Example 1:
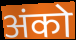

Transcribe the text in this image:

अंको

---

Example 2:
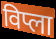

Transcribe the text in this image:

विप्ला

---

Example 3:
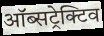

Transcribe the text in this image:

ऑब्सट्रेक्टिव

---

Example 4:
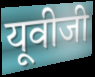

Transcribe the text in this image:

यूवीजी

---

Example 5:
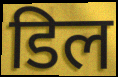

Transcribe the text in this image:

डिल